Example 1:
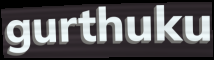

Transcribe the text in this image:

gurthuku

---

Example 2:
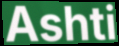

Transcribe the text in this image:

Ashti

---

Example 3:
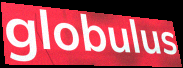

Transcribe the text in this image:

globulus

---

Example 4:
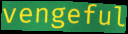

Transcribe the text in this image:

vengeful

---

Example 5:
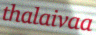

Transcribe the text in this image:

thalaivaa